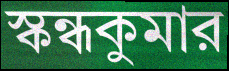
স্কন্ধকুমার